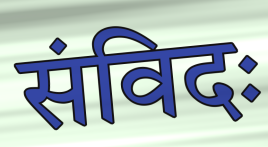
संविदः